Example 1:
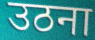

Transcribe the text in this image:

उठना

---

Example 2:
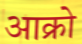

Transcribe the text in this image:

आक्रो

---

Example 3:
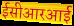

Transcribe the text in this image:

ईसीआरआई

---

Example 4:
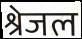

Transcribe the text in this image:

श्रेजल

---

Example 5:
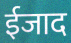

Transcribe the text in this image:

ईजाद